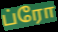
ப்ரோ